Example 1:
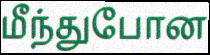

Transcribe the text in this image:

மீந்துபோன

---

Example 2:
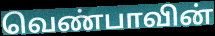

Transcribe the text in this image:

வெண்பாவின்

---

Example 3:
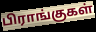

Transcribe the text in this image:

பிராங்குகள்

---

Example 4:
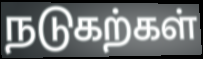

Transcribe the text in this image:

நடுகற்கள்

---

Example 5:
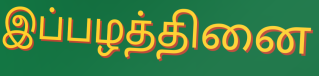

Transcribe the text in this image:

இப்பழத்தினை